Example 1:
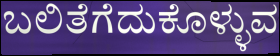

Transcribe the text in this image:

ಬಲಿತೆಗೆದುಕೊಳ್ಳುವ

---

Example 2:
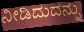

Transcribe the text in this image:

ನೀಡಿದುದನ್ನು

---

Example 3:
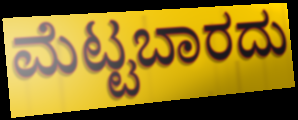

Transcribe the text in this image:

ಮೆಟ್ಟಬಾರದು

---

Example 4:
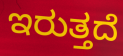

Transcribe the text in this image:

ಇರುತ್ತದೆ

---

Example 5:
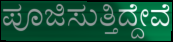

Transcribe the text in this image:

ಪೂಜಿಸುತ್ತಿದ್ದೇವೆ